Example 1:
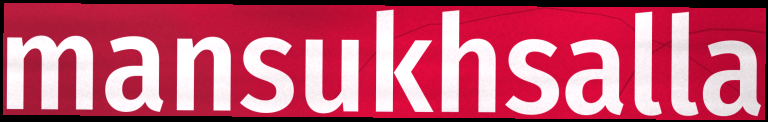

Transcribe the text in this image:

mansukhsalla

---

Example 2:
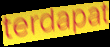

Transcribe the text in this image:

terdapat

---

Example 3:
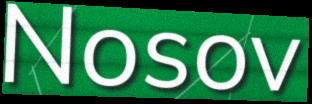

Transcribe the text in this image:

Nosov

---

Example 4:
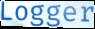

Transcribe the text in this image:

Logger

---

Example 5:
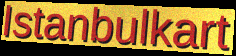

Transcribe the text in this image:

Istanbulkart